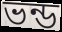
ভন্ড